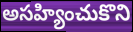
అసహ్యించుకొని